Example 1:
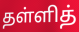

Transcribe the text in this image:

தள்ளித்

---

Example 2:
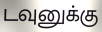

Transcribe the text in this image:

டவுனுக்கு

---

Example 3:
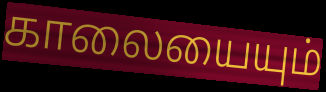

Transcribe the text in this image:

காலையையும்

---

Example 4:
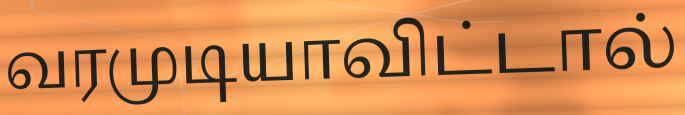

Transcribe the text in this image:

வரமுடியாவிட்டால்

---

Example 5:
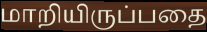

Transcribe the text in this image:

மாறியிருப்பதை